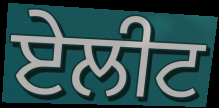
ਏਲੀਟ